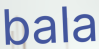
bala